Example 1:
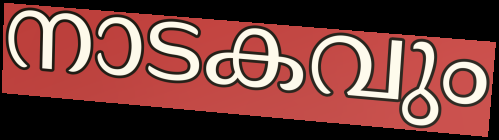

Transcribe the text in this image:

നാടകവും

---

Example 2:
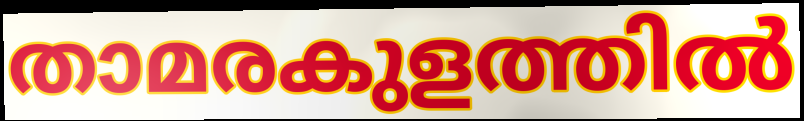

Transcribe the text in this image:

താമരകുളത്തിൽ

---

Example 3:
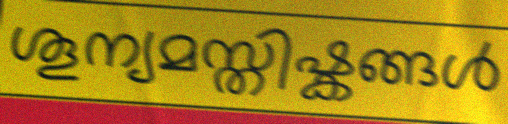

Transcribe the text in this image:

ശൂന്യമസ്തിഷ്കങ്ങൾ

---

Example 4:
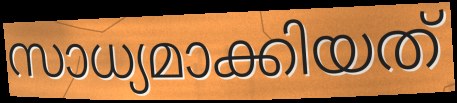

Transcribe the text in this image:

സാധ്യമാക്കിയത്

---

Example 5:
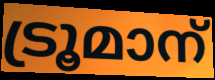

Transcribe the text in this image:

ട്രൂമാന്